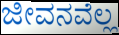
ಜೀವನವೆಲ್ಲ